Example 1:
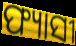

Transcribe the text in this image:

ଫ୍ୟାସୀ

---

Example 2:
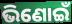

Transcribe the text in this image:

ଭିଣୋଇଁ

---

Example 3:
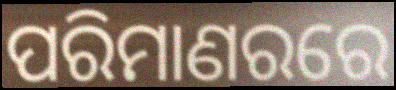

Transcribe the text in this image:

ପରିମାଣରରେ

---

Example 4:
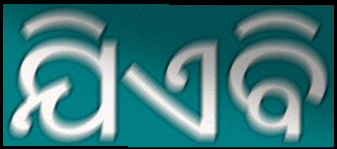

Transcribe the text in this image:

ଯିଏବି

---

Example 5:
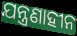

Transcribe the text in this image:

ଯନ୍ତ୍ରଣାହୀନ